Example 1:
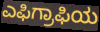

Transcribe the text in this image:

ಎಫಿಗ್ರಾಫಿಯ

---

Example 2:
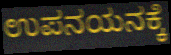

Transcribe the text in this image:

ಉಪನಯನಕ್ಕೆ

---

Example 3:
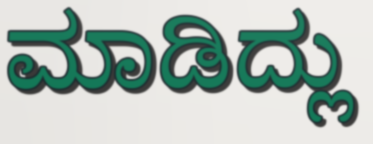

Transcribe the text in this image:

ಮಾಡಿದ್ಲು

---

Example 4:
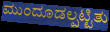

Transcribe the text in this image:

ಮುಂದೂಡಲ್ಪಟ್ಟಿತು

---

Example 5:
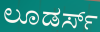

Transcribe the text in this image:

ಲೂಡರ್ಸ್